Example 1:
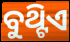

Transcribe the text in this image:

ବୁଥ୍ଟିଏ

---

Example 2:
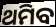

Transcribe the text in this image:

ଥମିବ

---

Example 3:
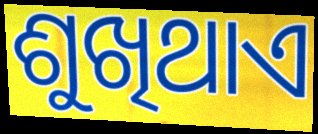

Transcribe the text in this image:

ଶୁଖିଥାଏ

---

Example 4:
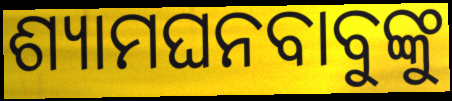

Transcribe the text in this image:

ଶ୍ୟାମଘନବାବୁଙ୍କୁ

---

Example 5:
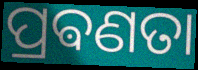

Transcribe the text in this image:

ପ୍ରଵଣତା